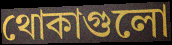
থোকাগুলো